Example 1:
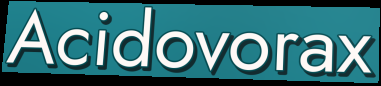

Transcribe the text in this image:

Acidovorax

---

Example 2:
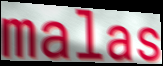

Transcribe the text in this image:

malas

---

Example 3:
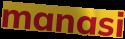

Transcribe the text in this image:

manasi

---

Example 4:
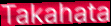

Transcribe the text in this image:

Takahata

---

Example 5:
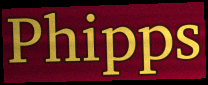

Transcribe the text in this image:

Phipps